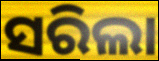
ସରିଲା